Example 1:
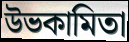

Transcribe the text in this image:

উভকামিতা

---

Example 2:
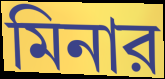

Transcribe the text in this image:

মিনার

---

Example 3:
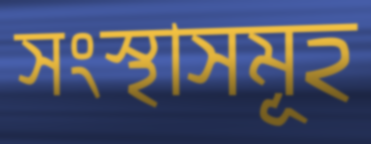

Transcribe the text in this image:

সংস্থাসমূহ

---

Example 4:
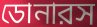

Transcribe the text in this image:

ডোনারস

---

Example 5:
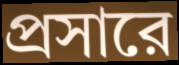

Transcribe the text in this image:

প্রসারে